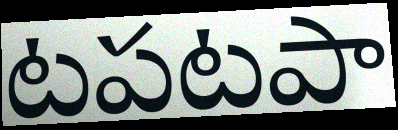
టపటపా